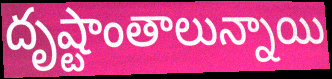
దృష్టాంతాలున్నాయి